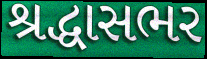
શ્રદ્ધાસભર